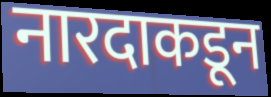
नारदाकडून